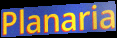
Planaria